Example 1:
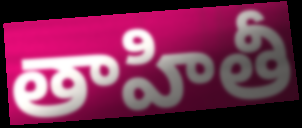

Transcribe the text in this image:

తాహితీ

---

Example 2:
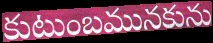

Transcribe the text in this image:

కుటుంబమునకును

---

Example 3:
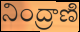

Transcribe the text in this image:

నింద్రాణి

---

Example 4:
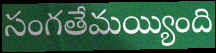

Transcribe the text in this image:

సంగతేమయ్యింది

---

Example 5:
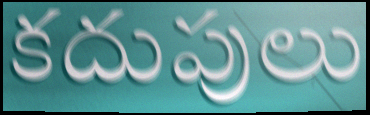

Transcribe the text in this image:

కదుపులు